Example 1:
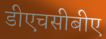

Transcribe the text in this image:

डीएचसीबीए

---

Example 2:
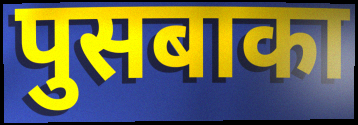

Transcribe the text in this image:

पुसबाका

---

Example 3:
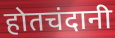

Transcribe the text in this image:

होतचंदानी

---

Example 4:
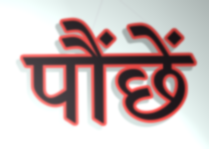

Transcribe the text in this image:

पौंछें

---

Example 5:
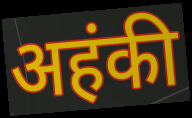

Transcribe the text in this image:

अहंकी